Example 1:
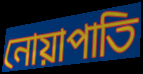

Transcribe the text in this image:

নোয়াপাতি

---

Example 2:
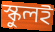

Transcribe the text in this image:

স্কুলই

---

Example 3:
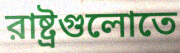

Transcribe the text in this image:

রাষ্ট্রগুলোতে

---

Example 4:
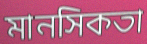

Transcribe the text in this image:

মানসিকতা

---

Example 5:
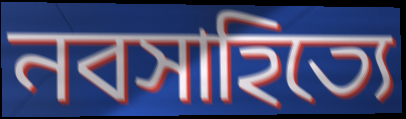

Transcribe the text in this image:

নবসাহিত্যে